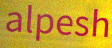
alpesh